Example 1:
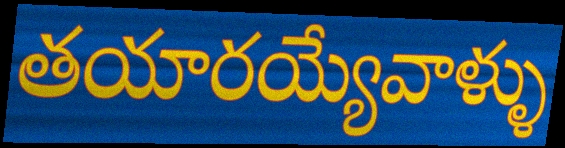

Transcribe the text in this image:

తయారయ్యేవాళ్ళు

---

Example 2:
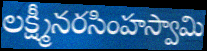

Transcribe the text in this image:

లక్ష్మీనరసింహస్వామి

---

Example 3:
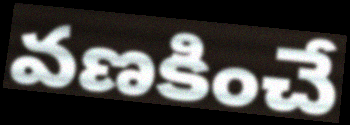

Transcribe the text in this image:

వణకించే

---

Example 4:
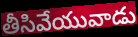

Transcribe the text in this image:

తీసివేయువాడు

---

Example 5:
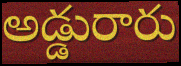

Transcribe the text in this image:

అడ్డురారు